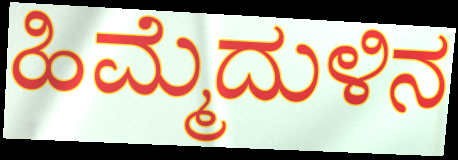
ಹಿಮ್ಮೆದುಳಿನ